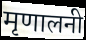
मृणालनी